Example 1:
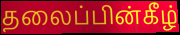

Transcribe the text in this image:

தலைப்பின்கீழ்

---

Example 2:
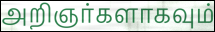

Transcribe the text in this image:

அறிஞர்களாகவும்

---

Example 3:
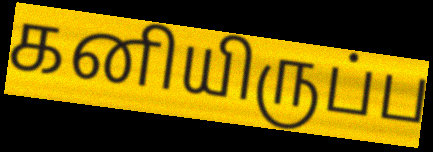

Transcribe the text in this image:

கனியிருப்ப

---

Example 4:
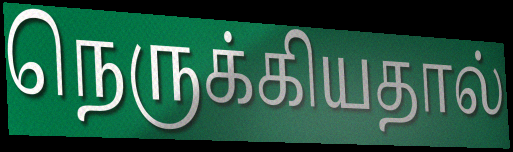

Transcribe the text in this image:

நெருக்கியதால்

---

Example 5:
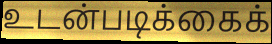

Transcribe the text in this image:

உடன்படிக்கைக்